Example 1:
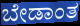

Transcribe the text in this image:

ಬೇಡಾಂತ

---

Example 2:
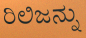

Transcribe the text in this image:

ರಿಲಿಜನ್ನು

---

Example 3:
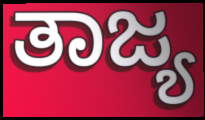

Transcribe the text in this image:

ತಾಜ್ಯ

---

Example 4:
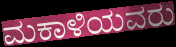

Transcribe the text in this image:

ಮಕಾಳಿಯವರು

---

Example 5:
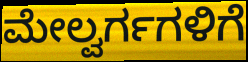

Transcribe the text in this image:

ಮೇಲ್ವರ್ಗಗಳಿಗೆ